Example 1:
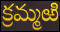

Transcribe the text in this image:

క్రమ్మఱి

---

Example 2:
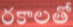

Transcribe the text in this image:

రకాలతో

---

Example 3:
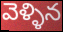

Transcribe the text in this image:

వెళ్ళిన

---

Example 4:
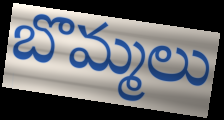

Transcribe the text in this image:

బొమ్మలు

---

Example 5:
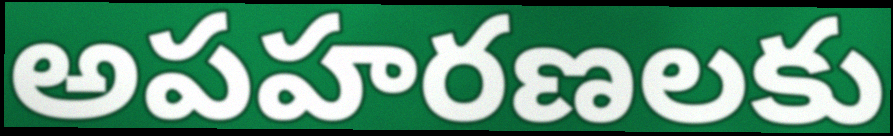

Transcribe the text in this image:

అపహరణలకు